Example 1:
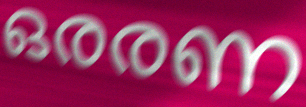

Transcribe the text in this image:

ഒരരണ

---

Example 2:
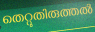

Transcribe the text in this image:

തെറ്റുതിരുത്തൽ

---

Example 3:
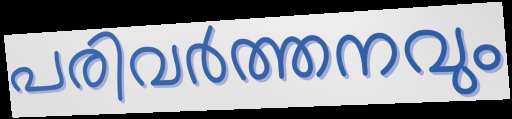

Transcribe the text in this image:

പരിവർത്തനവും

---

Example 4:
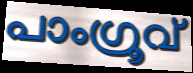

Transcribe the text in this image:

പാംഗ്രൂവ്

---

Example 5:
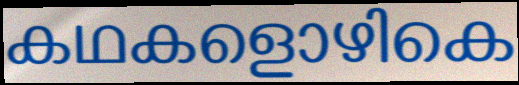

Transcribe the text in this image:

കഥകളൊഴികെ